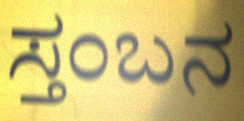
ಸ್ತಂಬನ